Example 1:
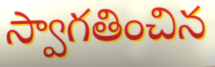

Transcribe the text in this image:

స్వాగతించిన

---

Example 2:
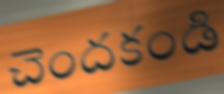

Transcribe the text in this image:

చెందకండి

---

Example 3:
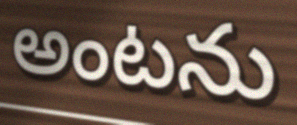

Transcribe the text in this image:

అంటను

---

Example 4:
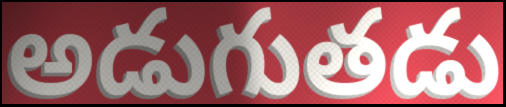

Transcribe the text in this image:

అడుగుతడు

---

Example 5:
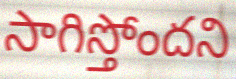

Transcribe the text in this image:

సాగిస్తోందని